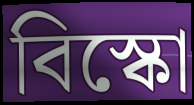
বিস্কো